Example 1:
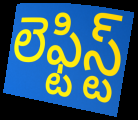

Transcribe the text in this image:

లెఫ్టిస్ట్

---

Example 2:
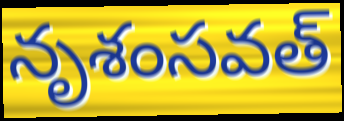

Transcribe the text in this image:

నృశంసవత్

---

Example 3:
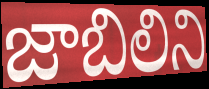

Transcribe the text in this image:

జాబిలిని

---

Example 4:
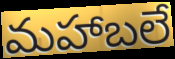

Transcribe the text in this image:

మహాబలే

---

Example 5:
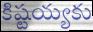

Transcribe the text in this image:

కిష్టయ్యకు